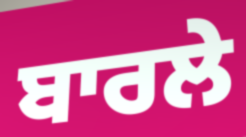
ਬਾਰਲੇ